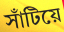
সাঁটিয়ে